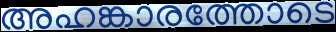
അഹങ്കാരത്തോടെ